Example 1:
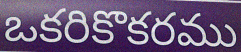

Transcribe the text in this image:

ఒకరికొకరము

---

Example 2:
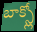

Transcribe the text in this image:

బాక్స్లో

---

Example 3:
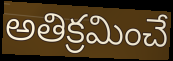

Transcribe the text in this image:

అతిక్రమించే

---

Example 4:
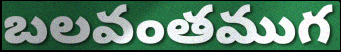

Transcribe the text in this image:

బలవంతముగ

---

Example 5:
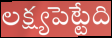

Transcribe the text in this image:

లక్ష్యపెట్టేది